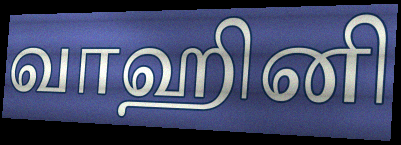
வாஹினி